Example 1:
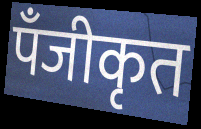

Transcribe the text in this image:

पँजीकृत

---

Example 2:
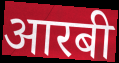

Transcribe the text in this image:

आरबी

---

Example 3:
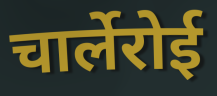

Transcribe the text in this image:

चार्लेरोई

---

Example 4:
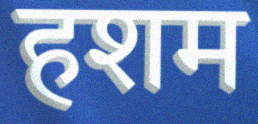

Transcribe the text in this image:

हशम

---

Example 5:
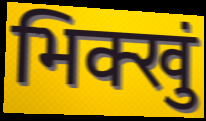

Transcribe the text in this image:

भिक्खुं